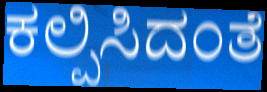
ಕಲ್ಪಿಸಿದಂತೆ